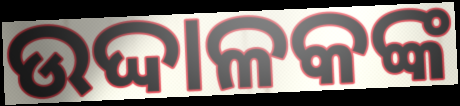
ଉଦ୍ଦାଳକଙ୍କ